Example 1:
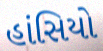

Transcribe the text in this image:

હાંસિયો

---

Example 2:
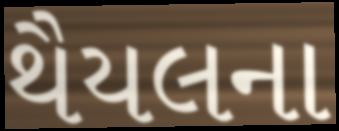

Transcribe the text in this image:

થૈયલના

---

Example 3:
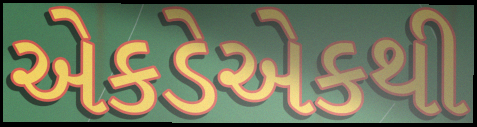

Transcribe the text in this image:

એકડેએકથી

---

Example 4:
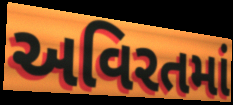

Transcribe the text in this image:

અવિરતમાં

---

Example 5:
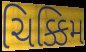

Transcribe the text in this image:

ચિક્કિમ